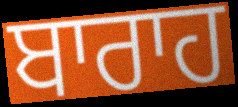
ਬਾਰਾਹ